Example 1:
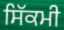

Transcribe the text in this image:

ਸਿੱਕਮੀ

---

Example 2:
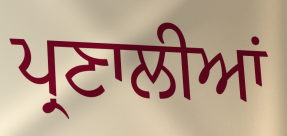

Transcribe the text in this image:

ਪ੍ਰਣਾਲੀਆਂ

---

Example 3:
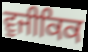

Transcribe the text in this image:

ਵੁਜੀਕਿਕ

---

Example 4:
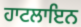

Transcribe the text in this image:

ਹਾਟਲਾਇਨ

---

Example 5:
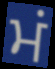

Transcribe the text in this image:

ਮਂ